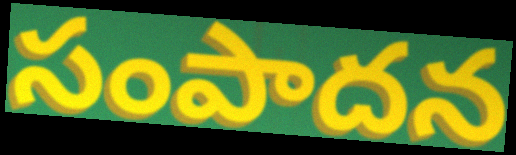
సంపాదన